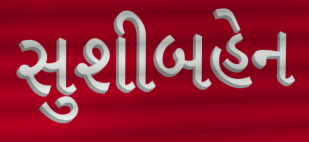
સુશીબહેન